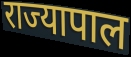
राज्यापाल